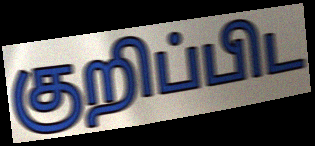
குறிப்பிட